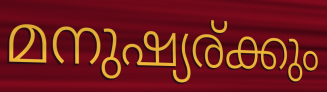
മനുഷ്യര്ക്കും